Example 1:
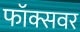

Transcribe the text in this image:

फॉक्सवर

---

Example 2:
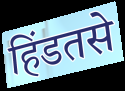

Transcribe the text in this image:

हिंडतसे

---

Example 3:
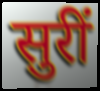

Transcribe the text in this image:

सुरीं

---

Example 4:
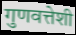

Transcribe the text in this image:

गुणवत्तेशी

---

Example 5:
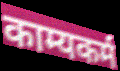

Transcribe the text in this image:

काम्यकर्म